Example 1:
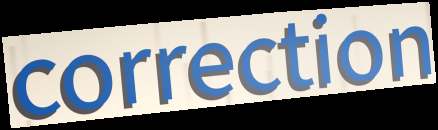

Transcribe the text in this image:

correction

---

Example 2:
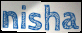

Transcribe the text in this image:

nisha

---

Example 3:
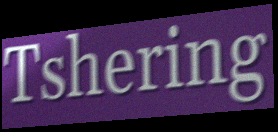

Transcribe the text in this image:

Tshering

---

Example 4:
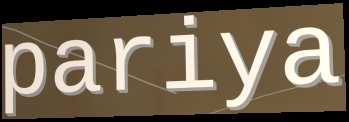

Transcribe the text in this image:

pariya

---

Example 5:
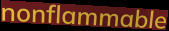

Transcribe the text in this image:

nonflammable